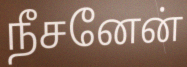
நீசனேன்